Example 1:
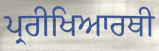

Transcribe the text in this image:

ਪ੍ਰਰੀਖਿਆਰਥੀ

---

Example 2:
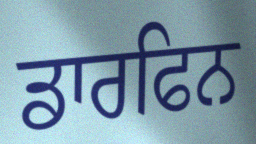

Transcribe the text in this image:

ਡਾਰਫਿਨ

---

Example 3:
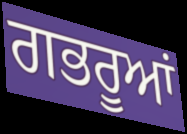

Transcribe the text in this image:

ਗਭਰੂਆਂ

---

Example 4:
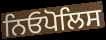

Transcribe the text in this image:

ਨਿਓਪੋਲਿਸ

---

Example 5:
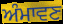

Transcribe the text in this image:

ਅੰਮਾਵਣ